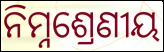
ନିମ୍ନଶ୍ରେଣୀୟ